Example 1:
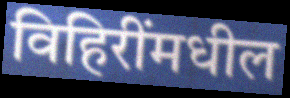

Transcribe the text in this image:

विहिरींमधील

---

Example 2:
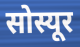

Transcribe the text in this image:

सोस्यूर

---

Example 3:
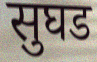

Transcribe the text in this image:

सुघड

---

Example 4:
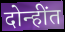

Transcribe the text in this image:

दोन्हींत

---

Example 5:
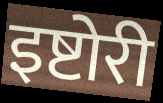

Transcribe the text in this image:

इष्टोरी